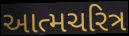
આત્મચરિત્ર